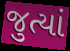
જુત્યાં